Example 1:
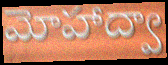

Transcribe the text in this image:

మోహాద్వా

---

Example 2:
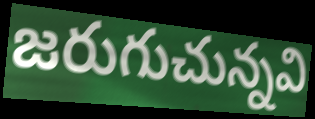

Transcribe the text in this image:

జరుగుచున్నవి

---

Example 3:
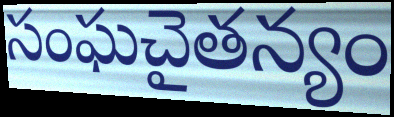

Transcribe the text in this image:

సంఘచైతన్యం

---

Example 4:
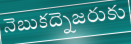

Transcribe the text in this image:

నెబుకద్నెజరుకు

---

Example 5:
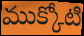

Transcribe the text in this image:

ముక్కోటి